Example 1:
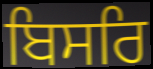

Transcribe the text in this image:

ਬਿਸਰਿ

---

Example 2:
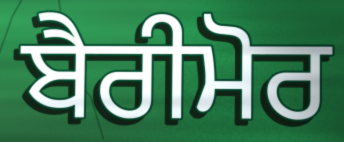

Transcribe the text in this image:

ਬੈਰੀਮੋਰ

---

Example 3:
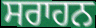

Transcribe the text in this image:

ਸਰਾਹਨ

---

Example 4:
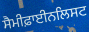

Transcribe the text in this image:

ਸੈਮੀਫ਼ਾਈਨਲਿਸਟ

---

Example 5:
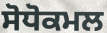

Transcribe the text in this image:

ਸੋਧੋਕਮਲ